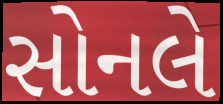
સોનલે